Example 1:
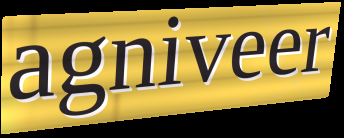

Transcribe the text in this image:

agniveer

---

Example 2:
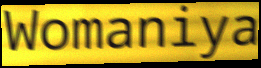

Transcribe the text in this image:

Womaniya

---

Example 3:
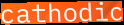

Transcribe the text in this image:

cathodic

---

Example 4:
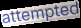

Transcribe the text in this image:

attempted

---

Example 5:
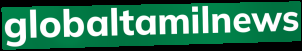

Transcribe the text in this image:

globaltamilnews